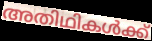
അതിഥികൾക്ക്